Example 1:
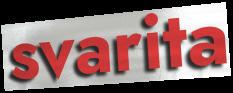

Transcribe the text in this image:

svarita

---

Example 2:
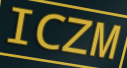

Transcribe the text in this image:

ICZM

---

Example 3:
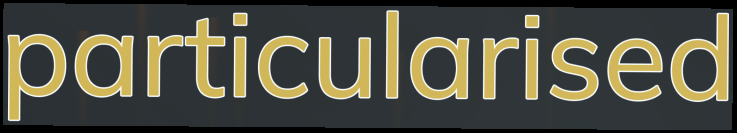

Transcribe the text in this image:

particularised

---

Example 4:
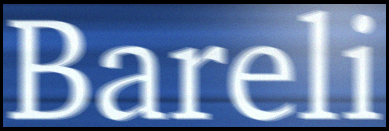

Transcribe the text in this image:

Bareli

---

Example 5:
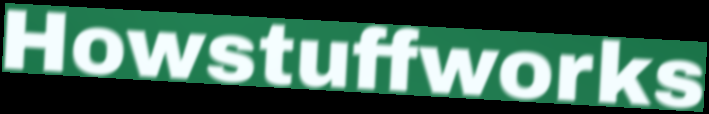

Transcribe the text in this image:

Howstuffworks